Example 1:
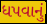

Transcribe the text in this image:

ધપવાનું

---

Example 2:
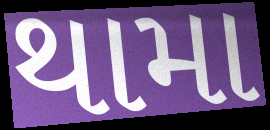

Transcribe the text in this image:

થામા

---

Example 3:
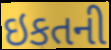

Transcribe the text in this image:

ઇકતની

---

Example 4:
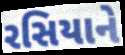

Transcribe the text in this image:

રસિયાને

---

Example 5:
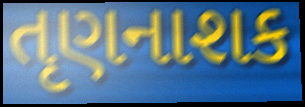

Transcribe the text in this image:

તૃણનાશક